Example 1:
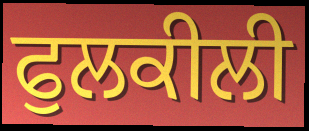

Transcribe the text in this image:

ਫੁਲਕੀਲੀ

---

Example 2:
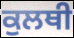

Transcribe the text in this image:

ਕੁਲਥੀ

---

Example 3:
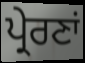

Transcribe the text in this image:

ਪ੍ਰੇਰਣਾਂ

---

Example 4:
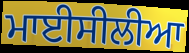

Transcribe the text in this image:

ਮਾਈਸੀਲੀਆ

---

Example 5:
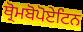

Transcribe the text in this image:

ਥ੍ਰੋਮਬੋਪੋਏਟਿਨ